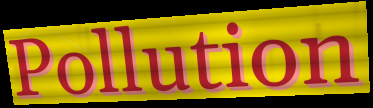
Pollution